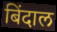
बिंदाल